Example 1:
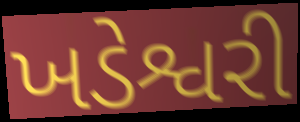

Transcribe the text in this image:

ખડેશ્વરી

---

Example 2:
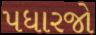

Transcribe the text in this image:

પધારજો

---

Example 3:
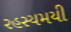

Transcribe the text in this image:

રહસ્યમયી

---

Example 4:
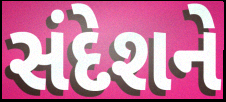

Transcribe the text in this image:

સંદેશને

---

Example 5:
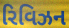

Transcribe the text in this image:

રિવિઝન